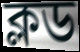
ক্লড